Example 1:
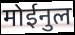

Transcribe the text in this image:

मोईनुल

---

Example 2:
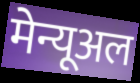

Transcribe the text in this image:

मेन्यूअल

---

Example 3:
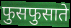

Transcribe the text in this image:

फुसफुसाते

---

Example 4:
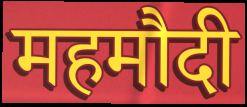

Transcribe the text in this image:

महमौदी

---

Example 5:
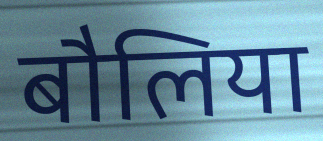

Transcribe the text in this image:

बौलिया